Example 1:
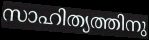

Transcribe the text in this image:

സാഹിത്യത്തിനു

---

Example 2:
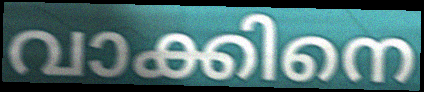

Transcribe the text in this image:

വാക്കിനെ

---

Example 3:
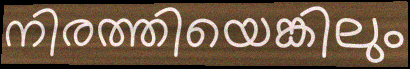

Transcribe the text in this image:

നിരത്തിയെങ്കിലും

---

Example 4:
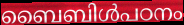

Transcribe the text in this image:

ബൈബിൾപഠനം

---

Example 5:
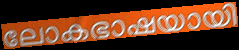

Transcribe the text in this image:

ലോകഭാഷയായി